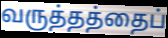
வருத்தத்தைப்